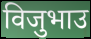
विजुभाउ